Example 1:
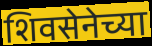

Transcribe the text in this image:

शिवसेनेच्या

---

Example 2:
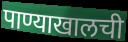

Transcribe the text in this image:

पाण्याखालची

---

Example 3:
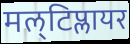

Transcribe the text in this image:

मल्टिप्लायर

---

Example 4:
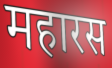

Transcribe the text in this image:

महारस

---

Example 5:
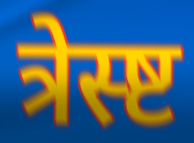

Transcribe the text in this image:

त्रेस्ष्ट